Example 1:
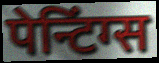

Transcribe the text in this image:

पेन्टिंग्स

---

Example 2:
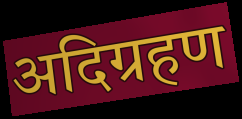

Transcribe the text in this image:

अदिग्रहण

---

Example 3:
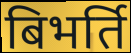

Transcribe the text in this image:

बिभर्ति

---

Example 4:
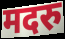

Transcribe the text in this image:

मदरु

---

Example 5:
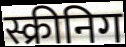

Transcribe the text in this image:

स्क्रीनिग